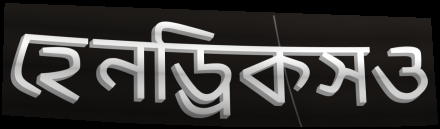
হেনড্রিকসও